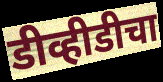
डीव्हीडीचा